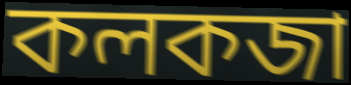
কলকজা